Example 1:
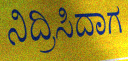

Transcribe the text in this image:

ನಿದ್ರಿಸಿದಾಗ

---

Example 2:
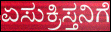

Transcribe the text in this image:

ಏಸುಕ್ರಿಸ್ತನಿಗೆ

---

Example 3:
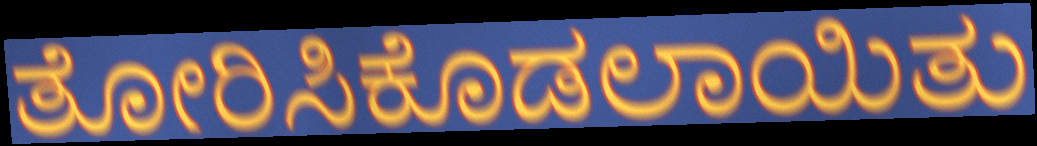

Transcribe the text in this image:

ತೋರಿಸಿಕೊಡಲಾಯಿತು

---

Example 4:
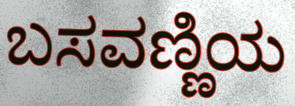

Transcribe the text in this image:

ಬಸವಣ್ಣಿಯ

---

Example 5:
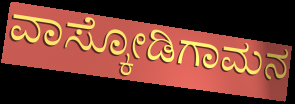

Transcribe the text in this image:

ವಾಸ್ಕೋಡಿಗಾಮನ